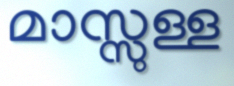
മാസ്സുള്ള